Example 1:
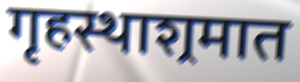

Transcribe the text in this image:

गृहस्थाश्रमात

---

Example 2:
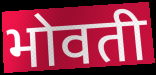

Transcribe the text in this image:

भोवती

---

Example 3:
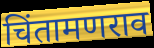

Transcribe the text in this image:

चिंतामणराव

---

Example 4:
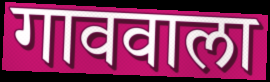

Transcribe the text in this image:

गाववाला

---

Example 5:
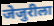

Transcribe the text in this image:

जेजुरीला